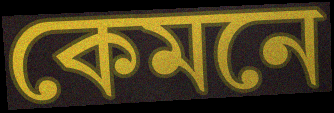
কেমনে